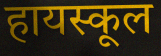
हायस्‍कूल